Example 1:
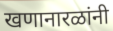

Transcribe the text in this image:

खणानारळांनी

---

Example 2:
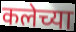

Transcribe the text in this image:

कलेच्या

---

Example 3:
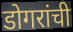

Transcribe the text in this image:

डोगरांची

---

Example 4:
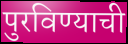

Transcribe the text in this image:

पुरविण्याची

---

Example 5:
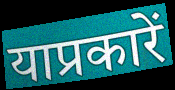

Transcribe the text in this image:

याप्रकारें